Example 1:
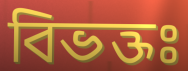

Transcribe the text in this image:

বিভক্তঃ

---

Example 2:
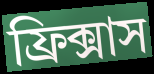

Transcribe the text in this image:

ফ্রিক্সাস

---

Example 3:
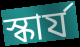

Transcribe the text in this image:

স্কার্য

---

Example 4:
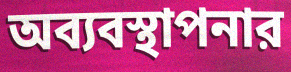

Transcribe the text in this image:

অব্যবস্থাপনার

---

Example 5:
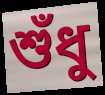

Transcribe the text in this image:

শুঁধু